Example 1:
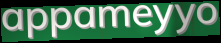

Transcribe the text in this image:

appameyyo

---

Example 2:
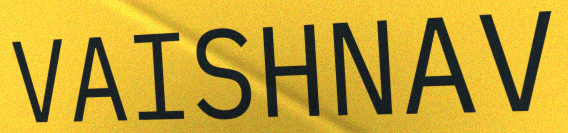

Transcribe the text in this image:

VAISHNAV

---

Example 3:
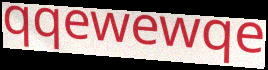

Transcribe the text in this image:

qqewewqe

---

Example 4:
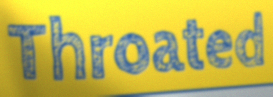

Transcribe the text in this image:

Throated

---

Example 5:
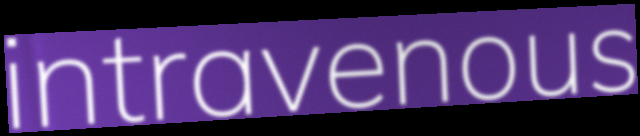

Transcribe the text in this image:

intravenous